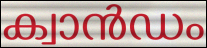
ക്വാൻഡം